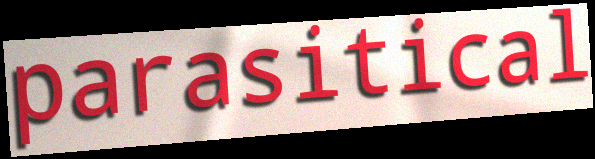
parasitical